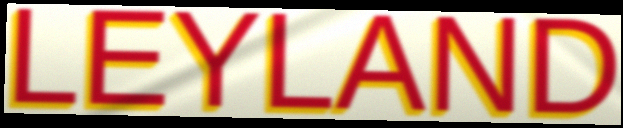
LEYLAND